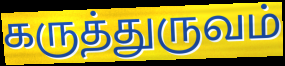
கருத்துருவம்